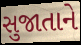
સુજાતાને